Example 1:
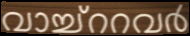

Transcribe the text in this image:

വാച്ച്ററവർ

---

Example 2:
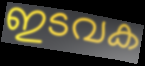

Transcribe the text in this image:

ഇടവക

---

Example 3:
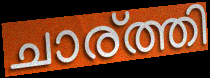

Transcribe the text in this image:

ചാര്ത്തി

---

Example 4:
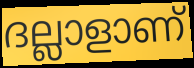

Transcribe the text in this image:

ദല്ലാളാണ്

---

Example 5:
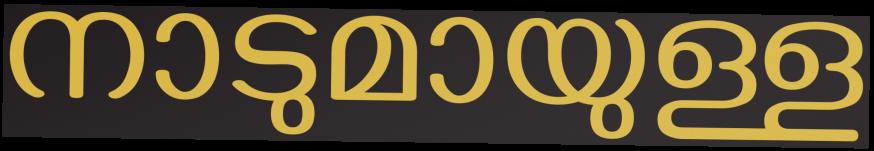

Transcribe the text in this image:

നാടുമായുള്ള